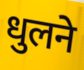
धुलने